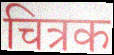
चित्रक